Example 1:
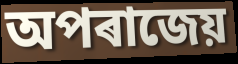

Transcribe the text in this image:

অপৰাজেয়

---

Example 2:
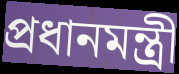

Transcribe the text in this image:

প্ৰধানমন্ত্ৰী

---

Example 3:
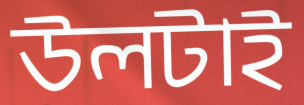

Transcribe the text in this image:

উলটাই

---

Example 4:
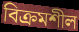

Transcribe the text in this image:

বিক্ৰমশীল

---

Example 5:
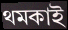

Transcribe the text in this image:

থমকাই